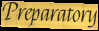
Preparatory